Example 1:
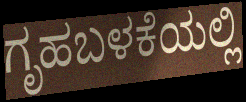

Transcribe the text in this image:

ಗೃಹಬಳಕೆಯಲ್ಲಿ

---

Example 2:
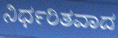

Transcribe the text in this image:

ನಿರ್ಧರಿತವಾದ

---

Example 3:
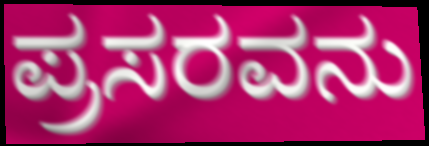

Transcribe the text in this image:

ಪ್ರಸರವನು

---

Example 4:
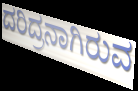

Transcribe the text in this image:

ದರಿದ್ರನಾಗಿರುವ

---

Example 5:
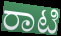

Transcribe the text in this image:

ರಾಟಿ